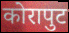
कोरापुट